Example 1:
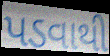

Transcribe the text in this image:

પડવાથી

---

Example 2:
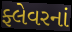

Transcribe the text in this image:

ફ્લેવરનાં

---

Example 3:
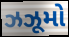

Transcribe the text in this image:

ઝઝૂમો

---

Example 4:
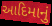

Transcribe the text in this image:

આદિમાનું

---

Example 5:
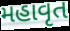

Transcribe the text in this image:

મહાવૃત